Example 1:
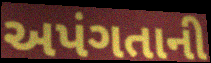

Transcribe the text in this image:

અપંગતાની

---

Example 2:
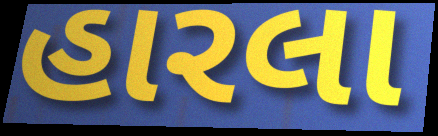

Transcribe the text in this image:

હારલા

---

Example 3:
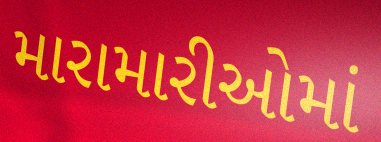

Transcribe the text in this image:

મારામારીઓમાં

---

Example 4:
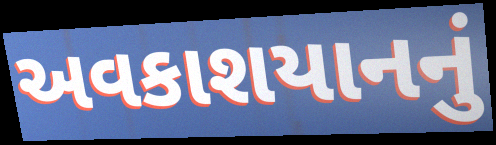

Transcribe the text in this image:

અવકાશયાનનું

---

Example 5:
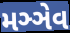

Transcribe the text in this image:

મઞ્ઞેવ